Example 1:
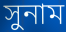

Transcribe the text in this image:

সুনাম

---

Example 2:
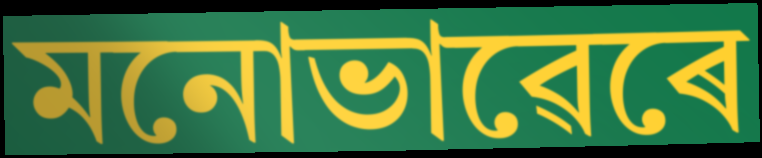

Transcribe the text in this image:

মনোভাৱেৰে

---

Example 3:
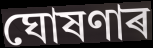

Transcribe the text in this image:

ঘোষণাৰ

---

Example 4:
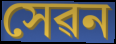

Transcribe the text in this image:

সেৱন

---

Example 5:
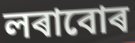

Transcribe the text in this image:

লৰাবোৰ